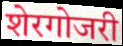
शेरगोजरी